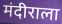
मंदीराला